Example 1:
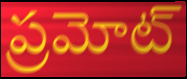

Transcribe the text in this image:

ప్రమోట్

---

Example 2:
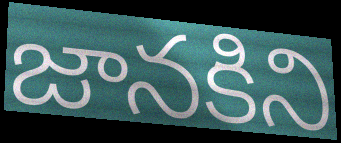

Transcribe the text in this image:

జానకిని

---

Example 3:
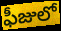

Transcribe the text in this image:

ఫీజులో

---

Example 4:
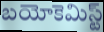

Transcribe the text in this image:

బయోకెమిస్ట్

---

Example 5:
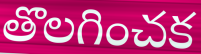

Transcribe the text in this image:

తొలగించక